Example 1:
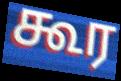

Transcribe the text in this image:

கூர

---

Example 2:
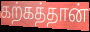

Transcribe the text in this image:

கற்கத்தான்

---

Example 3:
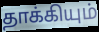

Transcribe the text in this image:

தாக்கியும்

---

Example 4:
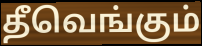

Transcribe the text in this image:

தீவெங்கும்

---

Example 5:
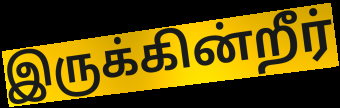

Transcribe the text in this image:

இருக்கின்றீர்